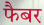
फैबर